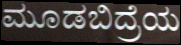
ಮೂಡಬಿದ್ರೆಯ